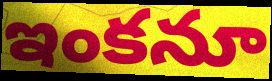
ఇంకనూ